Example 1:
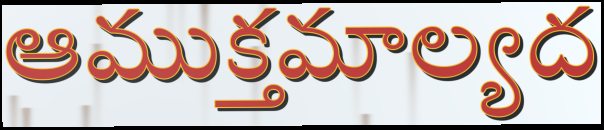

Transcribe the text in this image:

ఆముక్తమాల్యద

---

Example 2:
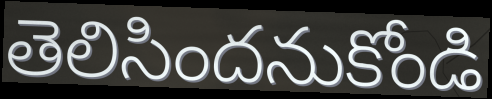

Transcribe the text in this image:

తెలిసిందనుకోండి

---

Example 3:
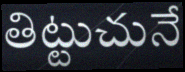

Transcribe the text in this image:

తిట్టుచునే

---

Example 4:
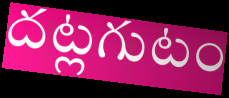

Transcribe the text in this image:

దట్లగుటం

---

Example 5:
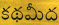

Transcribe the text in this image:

కథమీద